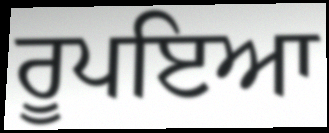
ਰੂਪਇਆ